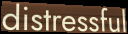
distressful